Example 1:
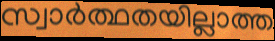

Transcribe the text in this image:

സ്വാർത്ഥതയില്ലാത്ത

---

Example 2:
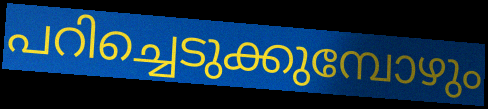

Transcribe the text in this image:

പറിച്ചെടുക്കുമ്പോഴും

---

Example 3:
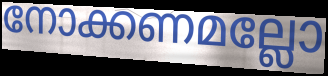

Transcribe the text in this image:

നോക്കണമല്ലോ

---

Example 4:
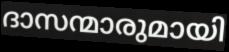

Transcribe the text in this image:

ദാസന്മാരുമായി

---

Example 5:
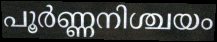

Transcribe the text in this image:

പൂർണ്ണനിശ്ചയം